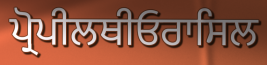
ਪ੍ਰੋਪੀਲਥੀਓਰਾਸਿਲ